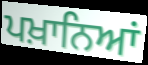
ਪਖ਼ਾਨਿਆਂ